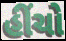
હીંચો